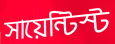
সায়েন্টিস্ট